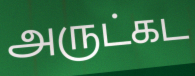
அருட்கட